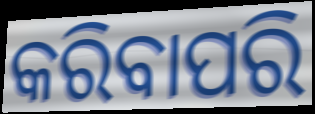
କରିବାପରି